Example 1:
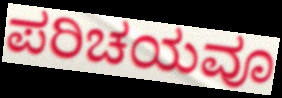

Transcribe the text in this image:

ಪರಿಚಯವೂ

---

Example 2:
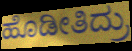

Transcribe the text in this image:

ಹೊಡೀತಿದ್ರು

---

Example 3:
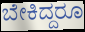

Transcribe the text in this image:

ಬೇಕಿದ್ದರೂ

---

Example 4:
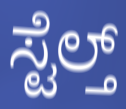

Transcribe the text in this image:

ಸ್ಟೆಲ್ತ್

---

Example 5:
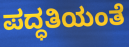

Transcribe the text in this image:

ಪದ್ಧತಿಯಂತೆ